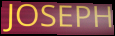
JOSEPH